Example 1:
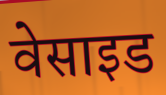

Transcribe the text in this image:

वेसाइड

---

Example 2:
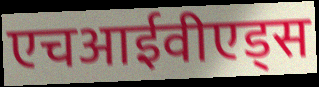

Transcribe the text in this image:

एचआईवीएड्स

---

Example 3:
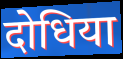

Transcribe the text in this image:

दोधिया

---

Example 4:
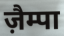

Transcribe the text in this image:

ज़ैम्पा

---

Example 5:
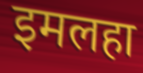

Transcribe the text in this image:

इमलहा